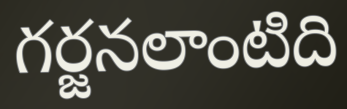
గర్జనలాంటిది